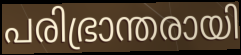
പരിഭ്രാന്തരായി